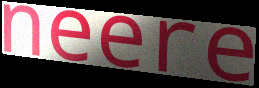
neere